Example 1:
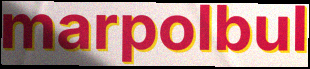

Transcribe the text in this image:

marpolbul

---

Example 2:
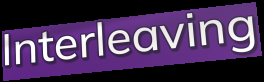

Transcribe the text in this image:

Interleaving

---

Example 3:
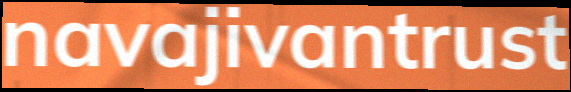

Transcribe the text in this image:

navajivantrust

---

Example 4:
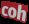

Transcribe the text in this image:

coh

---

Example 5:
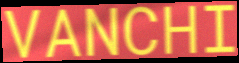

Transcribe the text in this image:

VANCHI